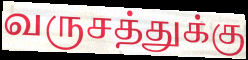
வருசத்துக்கு